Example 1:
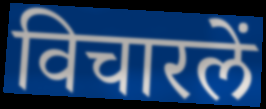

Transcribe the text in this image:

विचारलें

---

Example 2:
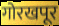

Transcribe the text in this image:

गोरखपूर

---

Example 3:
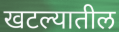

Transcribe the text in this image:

खटल्यातील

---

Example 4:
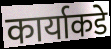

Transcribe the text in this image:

कार्याकडे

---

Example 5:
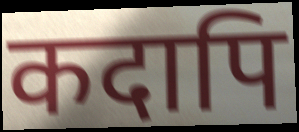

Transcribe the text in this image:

कदापि